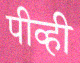
पीव्ही